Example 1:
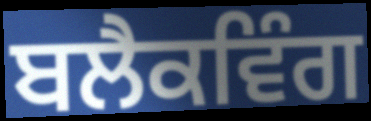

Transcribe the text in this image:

ਬਲੈਕਵਿੰਗ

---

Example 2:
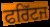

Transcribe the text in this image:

ਫਰਿੱਟਜ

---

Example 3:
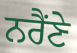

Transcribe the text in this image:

ਨਰੈਂਣੇ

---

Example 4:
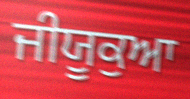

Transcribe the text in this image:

ਜੀਯੂਕੁਆ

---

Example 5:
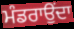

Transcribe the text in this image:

ਮੰਡਰਾਉਂਦਾ